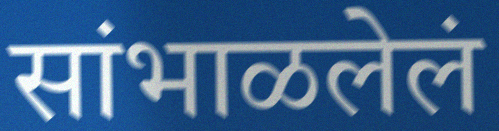
सांभाळलेलं